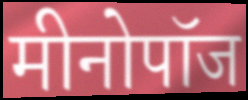
मीनोपॉज